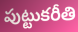
పుట్టుకరీతి